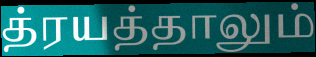
த்ரயத்தாலும்